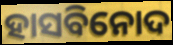
ହାସବିନୋଦ